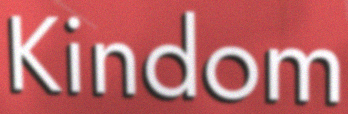
Kindom